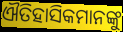
ଐତିହାସିକମାନଙ୍କୁ